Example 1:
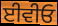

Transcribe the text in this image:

ਈਵੀਓ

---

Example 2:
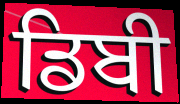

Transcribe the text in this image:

ਡਿਬੀ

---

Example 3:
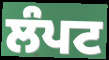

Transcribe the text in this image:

ਲੰਪਟ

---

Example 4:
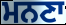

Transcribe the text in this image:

ਮਨਣਾ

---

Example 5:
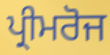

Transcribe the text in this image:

ਪ੍ਰੀਮਰੋਜ